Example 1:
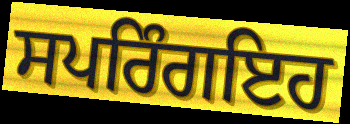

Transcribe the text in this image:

ਸਪਰਿੰਗਇਹ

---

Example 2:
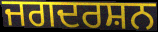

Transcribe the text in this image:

ਜਗਦਰਸ਼ਨ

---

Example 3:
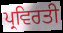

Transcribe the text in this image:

ਪ੍ਰਵਿਰਤੀ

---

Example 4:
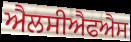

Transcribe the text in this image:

ਐਲਸੀਐਫਐਸ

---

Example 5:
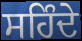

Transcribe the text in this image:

ਸਹਿੰਦੇ